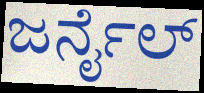
ಜರ್ನೈಲ್